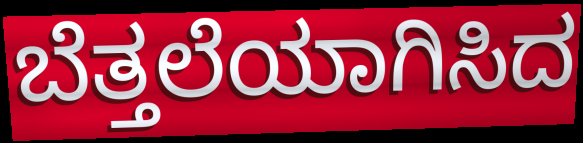
ಬೆತ್ತಲೆಯಾಗಿಸಿದ